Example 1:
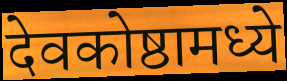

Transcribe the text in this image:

देवकोष्ठामध्ये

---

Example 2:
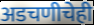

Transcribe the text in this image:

अडचणीचेही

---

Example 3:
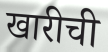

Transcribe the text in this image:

खारीची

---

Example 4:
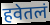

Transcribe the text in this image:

हवेतलं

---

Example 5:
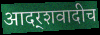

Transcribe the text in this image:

आदर्शवादीच